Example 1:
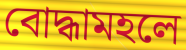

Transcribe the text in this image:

বোদ্ধামহলে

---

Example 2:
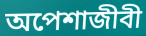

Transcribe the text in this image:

অপেশাজীবী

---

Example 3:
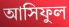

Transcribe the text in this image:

আসিফুল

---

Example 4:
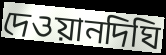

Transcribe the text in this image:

দেওয়ানদিঘি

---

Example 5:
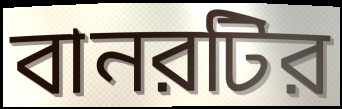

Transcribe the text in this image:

বানরটির